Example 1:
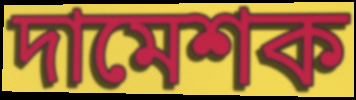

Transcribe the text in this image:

দামেশক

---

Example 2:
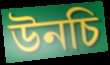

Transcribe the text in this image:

উনচি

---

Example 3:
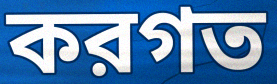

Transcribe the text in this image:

করগত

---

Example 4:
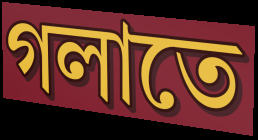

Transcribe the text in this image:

গলাতে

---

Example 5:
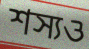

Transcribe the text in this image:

শস্যও